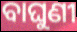
ବାଘୁଣୀ